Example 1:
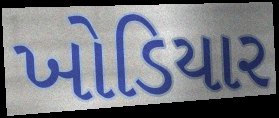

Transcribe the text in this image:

ખોડિયાર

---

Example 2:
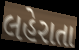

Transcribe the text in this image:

લહેરાતા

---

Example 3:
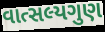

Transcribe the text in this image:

વાત્સલ્યગુણ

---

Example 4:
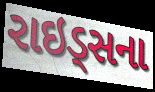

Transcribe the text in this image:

રાઇડ્સના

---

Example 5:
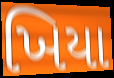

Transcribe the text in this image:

ખિયા